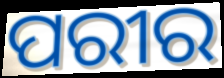
ପରୀର